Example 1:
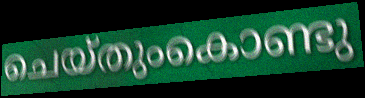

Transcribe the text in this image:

ചെയ്തുംകൊണ്ടു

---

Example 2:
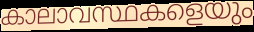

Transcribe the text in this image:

കാലാവസ്ഥകളെയും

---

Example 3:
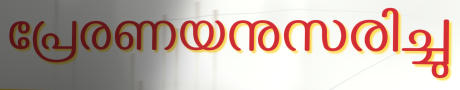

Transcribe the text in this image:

പ്രേരണയനുസരിച്ചു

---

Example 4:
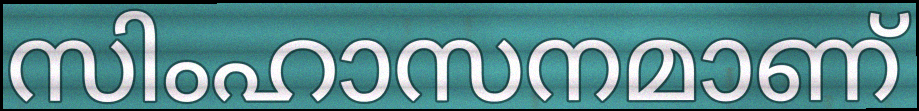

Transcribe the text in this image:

സിംഹാസനമാണ്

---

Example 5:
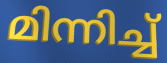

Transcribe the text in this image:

മിന്നിച്ച്